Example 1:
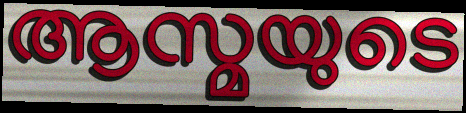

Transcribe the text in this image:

ആസ്മയുടെ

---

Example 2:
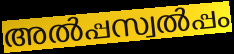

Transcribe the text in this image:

അൽപ്പസ്വൽപ്പം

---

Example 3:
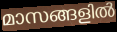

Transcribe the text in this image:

മാസങ്ങളിൽ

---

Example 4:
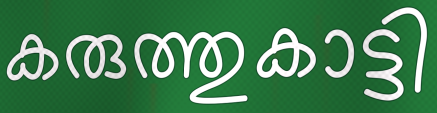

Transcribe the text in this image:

കരുത്തുകാട്ടി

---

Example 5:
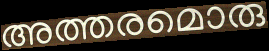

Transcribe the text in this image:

അത്തരമൊരു